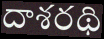
దాశరథి